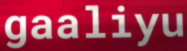
gaaliyu